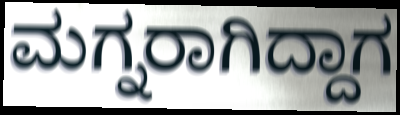
ಮಗ್ನರಾಗಿದ್ದಾಗ